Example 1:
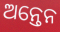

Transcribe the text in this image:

ଅନ୍ତେନ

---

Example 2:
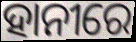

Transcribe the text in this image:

ହାନୀରେ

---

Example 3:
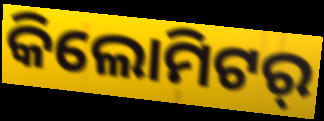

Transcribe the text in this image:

କିଲୋମିଟର୍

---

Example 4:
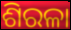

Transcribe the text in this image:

ଶିରଳା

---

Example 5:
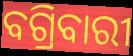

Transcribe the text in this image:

ବଗ୍ରିବାରୀ